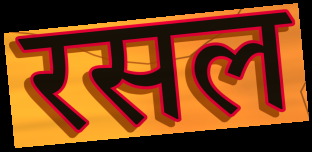
रसल